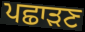
ਪਛਾੜਣ